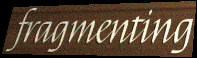
fragmenting